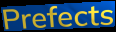
Prefects